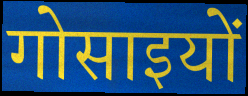
गोसाइयों